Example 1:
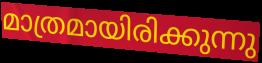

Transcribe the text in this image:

മാത്രമായിരിക്കുന്നു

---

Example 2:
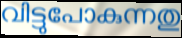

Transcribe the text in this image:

വിട്ടുപോകുന്നതു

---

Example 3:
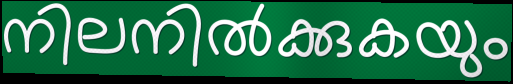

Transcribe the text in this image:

നിലനിൽക്കുകയും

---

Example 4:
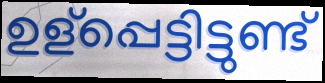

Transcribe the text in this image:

ഉള്പ്പെട്ടിട്ടുണ്ട്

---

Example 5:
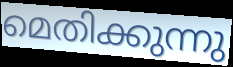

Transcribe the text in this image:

മെതിക്കുന്നു